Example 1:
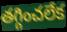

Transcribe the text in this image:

తగ్గించలేక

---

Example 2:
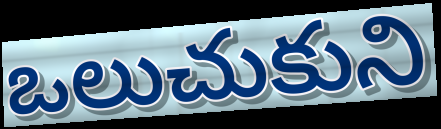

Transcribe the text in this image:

ఒలుచుకుని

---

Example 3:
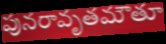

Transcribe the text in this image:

పునరావృతమౌతూ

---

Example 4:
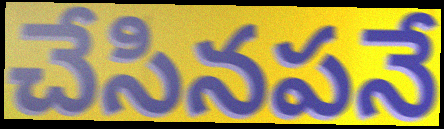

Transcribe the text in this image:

చేసినపనే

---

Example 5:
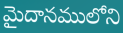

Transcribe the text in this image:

మైదానములోని